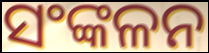
ସଂଙ୍କଳନ